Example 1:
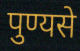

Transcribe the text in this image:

पुण्यसे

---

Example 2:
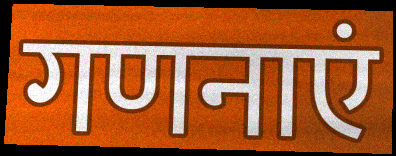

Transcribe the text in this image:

गणनाएं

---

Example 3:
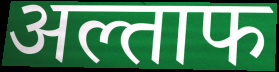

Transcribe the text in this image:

अल्ताफ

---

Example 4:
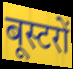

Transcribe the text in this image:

बूस्टरों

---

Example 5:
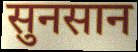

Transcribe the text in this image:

सुनसान